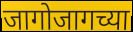
जागोजागच्या